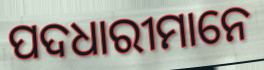
ପଦଧାରୀମାନେ